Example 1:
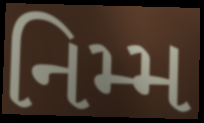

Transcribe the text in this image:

નિમ્મ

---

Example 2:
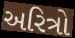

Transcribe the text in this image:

અરિત્રો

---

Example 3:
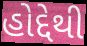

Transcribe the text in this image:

હોદ્દેથી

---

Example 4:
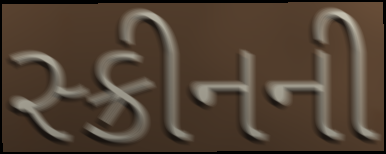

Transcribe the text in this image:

સ્ક્રીનની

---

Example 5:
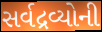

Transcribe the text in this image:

સર્વદ્રવ્યોની